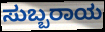
ಸುಬ್ಬರಾಯ